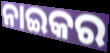
ନାଇକର